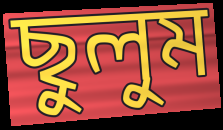
ছুলুম